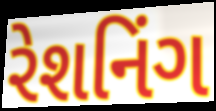
રેશનિંગ